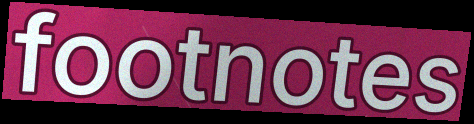
footnotes